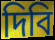
দিবি